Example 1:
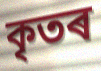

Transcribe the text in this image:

কৃতৰ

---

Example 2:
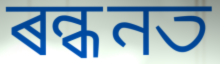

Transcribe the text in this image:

ৰন্ধনত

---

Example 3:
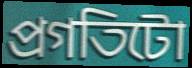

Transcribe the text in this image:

প্ৰগতিটো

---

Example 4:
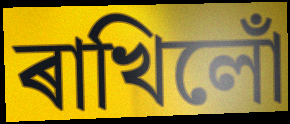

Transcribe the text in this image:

ৰাখিলোঁ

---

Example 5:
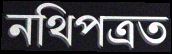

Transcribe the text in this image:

নথিপত্ৰত